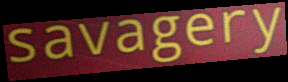
savagery